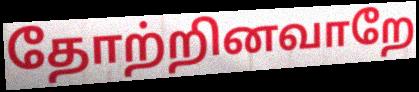
தோற்றினவாறே